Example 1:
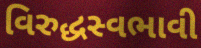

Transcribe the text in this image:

વિરુદ્ધસ્વભાવી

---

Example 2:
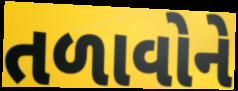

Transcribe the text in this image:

તળાવોને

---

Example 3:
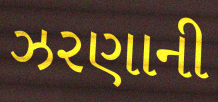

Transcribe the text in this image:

ઝરણાની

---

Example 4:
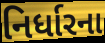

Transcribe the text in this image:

નિર્ધારના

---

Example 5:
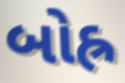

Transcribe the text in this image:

બોહ્ર